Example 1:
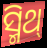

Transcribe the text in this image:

ସ୍ମିଥ୍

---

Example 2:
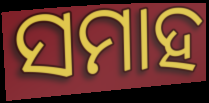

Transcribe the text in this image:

ସମାହ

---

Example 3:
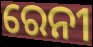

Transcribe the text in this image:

ରେନୀ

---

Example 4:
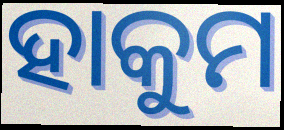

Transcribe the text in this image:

ହାକୁମ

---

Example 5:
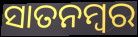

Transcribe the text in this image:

ସାତନମ୍ବର